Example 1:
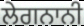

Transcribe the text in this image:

ਲੇਗਨਾਨੀ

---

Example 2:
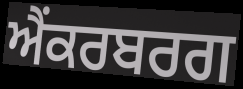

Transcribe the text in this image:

ਐਂਕਰਬਰਗ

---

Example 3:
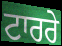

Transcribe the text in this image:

ਟਾਰਰੇ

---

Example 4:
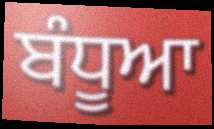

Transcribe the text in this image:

ਬੰਧੂਆ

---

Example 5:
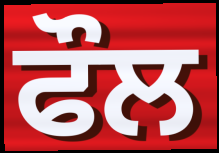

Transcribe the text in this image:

ਫੌਲ